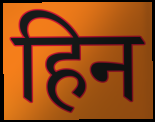
हिन